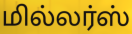
மில்லர்ஸ்